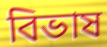
বিভাষ